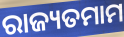
ରାଜ୍ୟତମାମ